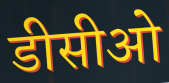
डीसीओ